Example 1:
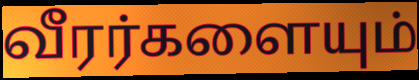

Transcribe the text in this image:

வீரர்களையும்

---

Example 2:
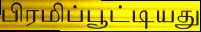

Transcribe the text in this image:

பிரமிப்பூட்டியது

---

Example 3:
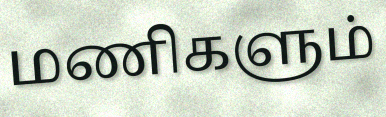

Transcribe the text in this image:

மணிகளும்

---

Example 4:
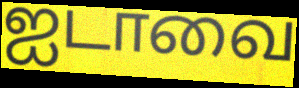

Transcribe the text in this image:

ஐடாவை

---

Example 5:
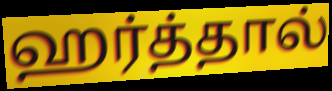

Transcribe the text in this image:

ஹர்த்தால்